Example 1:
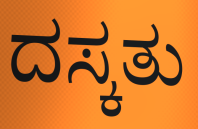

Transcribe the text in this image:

ದಸ್ಕತು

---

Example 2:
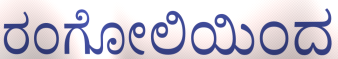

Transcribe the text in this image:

ರಂಗೋಲಿಯಿಂದ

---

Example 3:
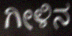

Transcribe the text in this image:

ಗೀಳಿನ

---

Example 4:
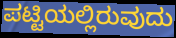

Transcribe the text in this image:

ಪಟ್ಟಿಯಲ್ಲಿರುವುದು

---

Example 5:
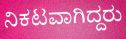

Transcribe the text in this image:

ನಿಕಟವಾಗಿದ್ದರು